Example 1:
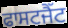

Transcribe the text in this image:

ਫਾਸਟਜੈੱਟ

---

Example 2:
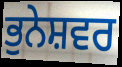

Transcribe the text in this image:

ਭੁਨੇਸ਼ਵਰ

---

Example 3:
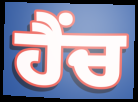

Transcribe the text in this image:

ਹੈਂਚ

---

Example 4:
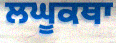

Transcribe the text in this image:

ਲਘੂਕਥਾ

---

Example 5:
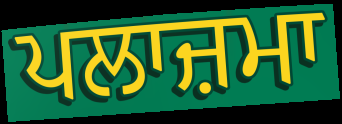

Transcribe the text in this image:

ਪਲਾਜ਼ਮਾ